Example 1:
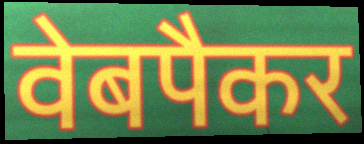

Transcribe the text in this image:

वेबपैकर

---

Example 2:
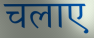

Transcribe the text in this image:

चलाए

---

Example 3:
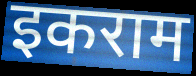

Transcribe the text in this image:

इकराम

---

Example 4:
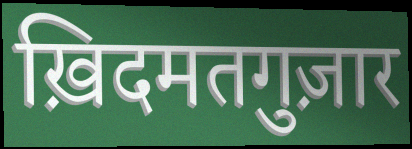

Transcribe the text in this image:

ख़िदमतगुज़ार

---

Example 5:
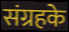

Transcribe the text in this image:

संग्रहके